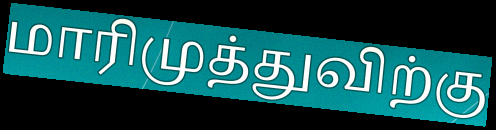
மாரிமுத்துவிற்கு